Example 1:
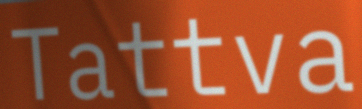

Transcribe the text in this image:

Tattva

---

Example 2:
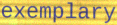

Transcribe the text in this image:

exemplary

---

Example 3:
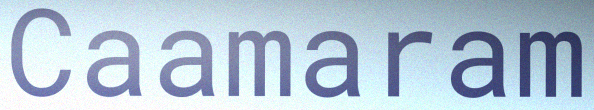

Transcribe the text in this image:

Caamaram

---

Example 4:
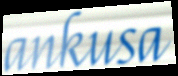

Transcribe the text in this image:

ankusa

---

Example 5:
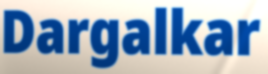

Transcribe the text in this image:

Dargalkar